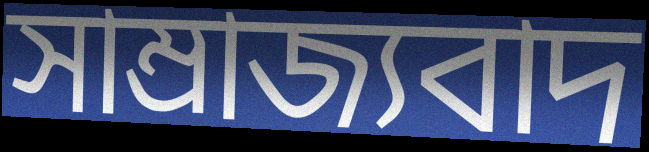
সাম্ৰাজ্যবাদ